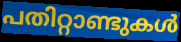
പതിറ്റാണ്ടുകൾ